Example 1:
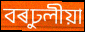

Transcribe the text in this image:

বৰঢুলীয়া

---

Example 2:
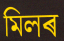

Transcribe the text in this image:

মিলৰ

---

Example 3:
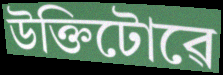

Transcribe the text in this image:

উক্তিটোৱে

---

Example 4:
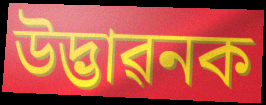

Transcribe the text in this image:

উদ্ভাৱনক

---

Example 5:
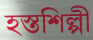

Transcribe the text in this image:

হস্তশিল্পী